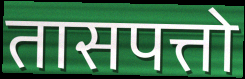
तासपत्तो